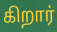
கிறார்